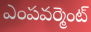
ఎంపవర్మెంట్